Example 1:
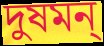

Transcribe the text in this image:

দুষমন্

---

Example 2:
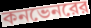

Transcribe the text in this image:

কনভেনরের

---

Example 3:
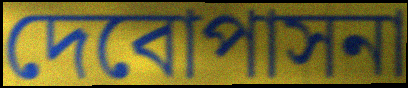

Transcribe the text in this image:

দেবোপাসনা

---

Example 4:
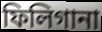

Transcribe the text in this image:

ফিলিগানা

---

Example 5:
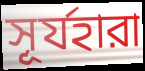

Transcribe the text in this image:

সূর্যহারা